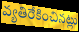
వ్యతిరేకించినట్లు